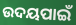
ଉଦୟପାଇଁ